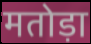
मतोड़ा